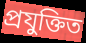
প্ৰযুক্তিত